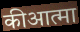
कीआत्मा